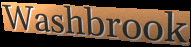
Washbrook